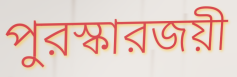
পুরস্কারজয়ী